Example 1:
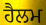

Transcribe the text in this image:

ਹੈਲਮ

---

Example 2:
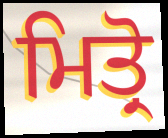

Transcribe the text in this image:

ਮਿਤ੍ਰੋ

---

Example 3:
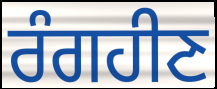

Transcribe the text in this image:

ਰੰਗਹੀਣ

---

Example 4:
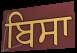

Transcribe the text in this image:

ਬਿਸਾ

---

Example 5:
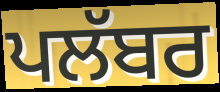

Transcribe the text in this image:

ਪਲੱਬਰ